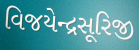
વિજયેન્દ્રસૂરિજી